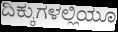
ದಿಕ್ಕುಗಳಲ್ಲಿಯೂ